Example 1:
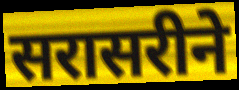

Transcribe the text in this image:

सरासरीने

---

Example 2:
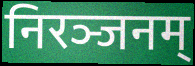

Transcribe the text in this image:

निरञ्जनम्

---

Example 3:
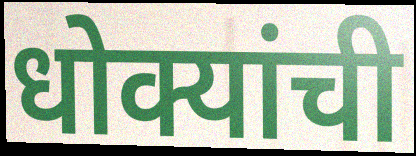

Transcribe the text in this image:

धोक्यांची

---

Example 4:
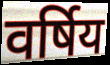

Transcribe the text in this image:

वर्षिय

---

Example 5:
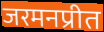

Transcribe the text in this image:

जरमनप्रीत